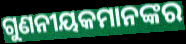
ଗୁଣନୀୟକମାନଙ୍କର